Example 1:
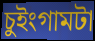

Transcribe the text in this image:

চুইংগামটা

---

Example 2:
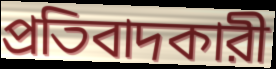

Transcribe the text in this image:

প্রতিবাদকারী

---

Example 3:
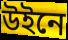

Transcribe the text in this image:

উইনে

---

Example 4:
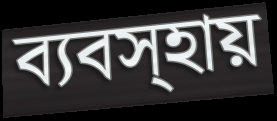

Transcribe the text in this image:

ব্যবস্হায়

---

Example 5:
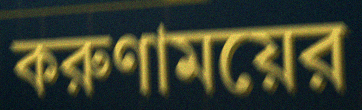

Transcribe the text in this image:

করুণাময়ের